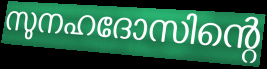
സുനഹദോസിന്റെ